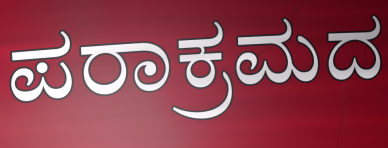
ಪರಾಕ್ರಮದ